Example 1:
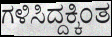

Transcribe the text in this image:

ಗಳಿಸಿದ್ದಕ್ಕಿಂತ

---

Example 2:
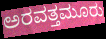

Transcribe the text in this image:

ಅರವತ್ತಮೂರು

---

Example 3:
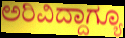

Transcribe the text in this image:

ಅರಿವಿದ್ದಾಗ್ಯೂ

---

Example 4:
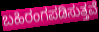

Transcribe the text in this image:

ಬಹಿರಂಗಪಡಿಸುತ್ತವೆ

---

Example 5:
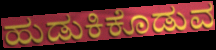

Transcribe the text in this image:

ಹುಡುಕಿಕೊಡುವ